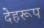
देहरूप